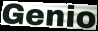
Genio